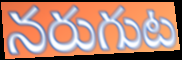
నరుగుట